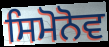
ਸਿਮੋਨੋਵ